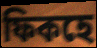
ফিকহে